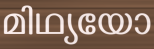
മിഥ്യയോ